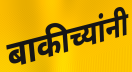
बाकीच्यांनी